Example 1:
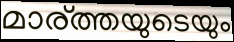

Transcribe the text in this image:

മാര്ത്തയുടെയും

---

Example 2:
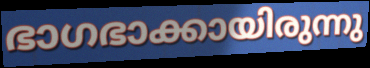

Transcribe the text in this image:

ഭാഗഭാക്കായിരുന്നു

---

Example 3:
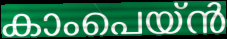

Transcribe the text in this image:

കാംപെയ്ൻ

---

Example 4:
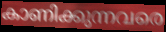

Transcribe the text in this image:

കാണിക്കുന്നവരെ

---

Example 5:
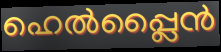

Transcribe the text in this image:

ഹെൽപ്പ്ലൈൻ